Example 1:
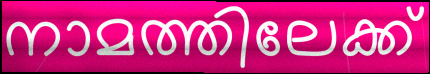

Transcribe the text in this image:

നാമത്തിലേക്ക്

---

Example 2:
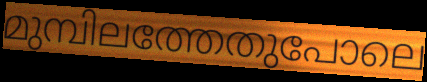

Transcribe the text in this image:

മുമ്പിലത്തേതുപോലെ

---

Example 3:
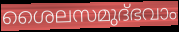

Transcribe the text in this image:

ശൈലസമുദ്ഭവാം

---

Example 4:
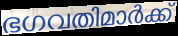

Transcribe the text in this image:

ഭഗവതിമാർക്ക്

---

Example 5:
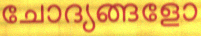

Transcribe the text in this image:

ചോദ്യങ്ങളോ